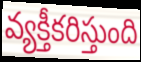
వ్యక్తీకరిస్తుంది